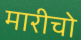
मारीचो